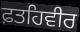
ਫ਼ਤਹਿਵੀਰ